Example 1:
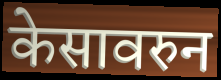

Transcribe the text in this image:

केसावरुन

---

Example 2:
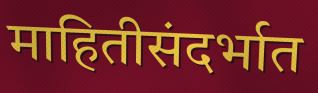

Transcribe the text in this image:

माहितीसंदर्भात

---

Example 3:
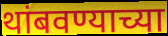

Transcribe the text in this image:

थांबवण्याच्या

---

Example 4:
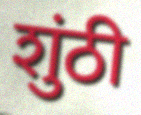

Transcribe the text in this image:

शुंठी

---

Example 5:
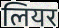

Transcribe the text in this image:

लियर